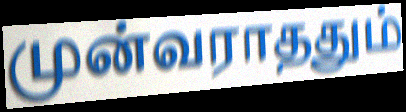
முன்வராததும்